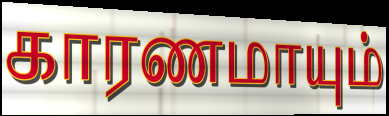
காரணமாயும்